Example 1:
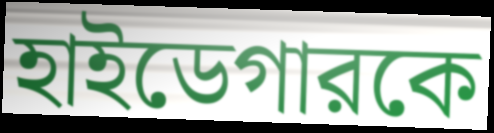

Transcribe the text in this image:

হাইডেগারকে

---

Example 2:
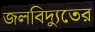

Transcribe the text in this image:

জলবিদ্যুতের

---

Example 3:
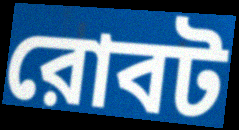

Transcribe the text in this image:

রোবট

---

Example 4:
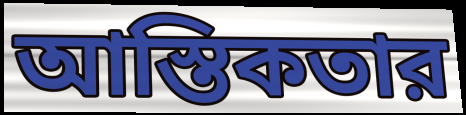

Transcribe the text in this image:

আস্তিকতার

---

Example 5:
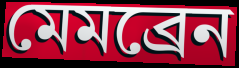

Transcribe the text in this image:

মেমব্রেন